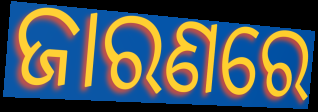
ଜାରଣରେ